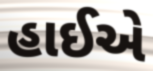
હાઈએ